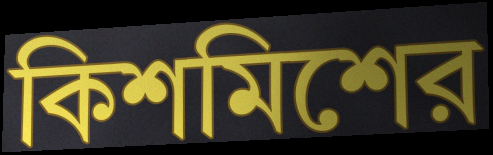
কিশমিশের